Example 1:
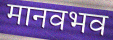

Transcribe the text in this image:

मानवभव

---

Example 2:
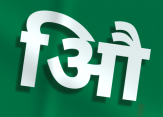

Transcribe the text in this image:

औि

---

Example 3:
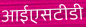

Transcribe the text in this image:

आईएसटीडी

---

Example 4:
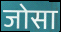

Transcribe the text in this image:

जोसा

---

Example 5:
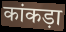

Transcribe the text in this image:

कांकड़ा